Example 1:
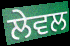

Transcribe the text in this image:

ਲੇਵਲ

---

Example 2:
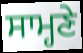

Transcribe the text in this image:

ਸਾਮ੍ਹਣੇ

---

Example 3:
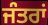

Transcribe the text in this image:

ਜੰਤਰਾਂ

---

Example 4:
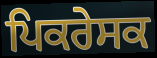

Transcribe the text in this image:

ਪਿਕਰੇਸਕ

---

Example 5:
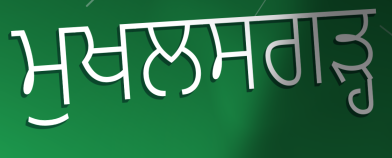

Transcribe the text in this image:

ਮੁਖਲਸਗੜ੍ਹ